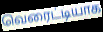
வெரைட்டியாக